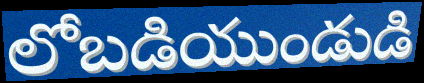
లోబడియుండుడి